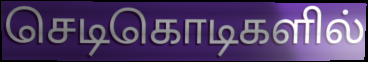
செடிகொடிகளில்